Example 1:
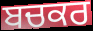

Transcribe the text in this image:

ਬਚਕਰ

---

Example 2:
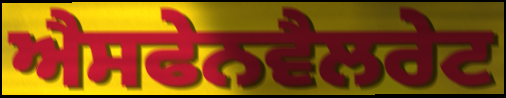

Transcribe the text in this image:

ਐਸਫੇਨਵੈਲਰੇਟ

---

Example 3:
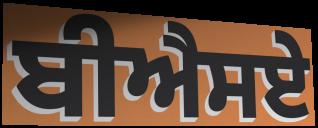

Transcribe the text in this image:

ਬੀਐਸਏ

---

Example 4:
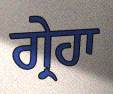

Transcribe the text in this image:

ਗ੍ਰੇਹਾ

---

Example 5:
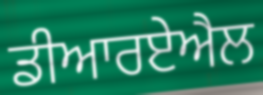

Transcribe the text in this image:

ਡੀਆਰਏਐਲ